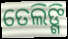
ତେଲିଙ୍ଗି